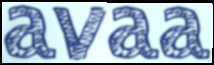
avaa